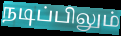
நடிப்பிலும்